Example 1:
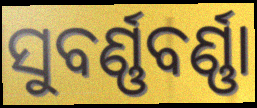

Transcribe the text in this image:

ସୁବର୍ଣ୍ଣବର୍ଣ୍ଣା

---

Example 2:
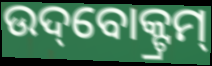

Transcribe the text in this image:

ଉଦ୍‌ବୋକ୍ଟ୍ରମ୍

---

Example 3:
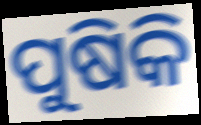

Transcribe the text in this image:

ପୁଷିକି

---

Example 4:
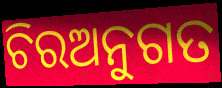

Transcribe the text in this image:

ଚିରଅନୁଗତ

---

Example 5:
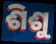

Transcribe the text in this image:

ଶିଶୁ